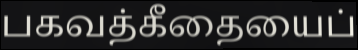
பகவத்கீதையைப்